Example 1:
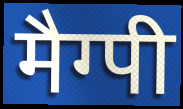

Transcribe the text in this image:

मैग्पी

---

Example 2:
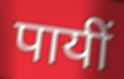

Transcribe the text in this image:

पायीं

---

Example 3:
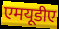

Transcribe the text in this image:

एमयूडीए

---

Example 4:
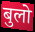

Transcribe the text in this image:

बुलो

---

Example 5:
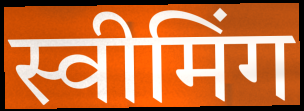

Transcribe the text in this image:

स्‍वीमिंग